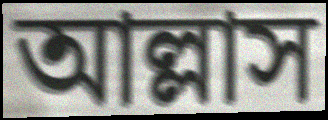
আল্লাস